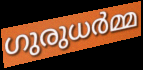
ഗുരുധർമ്മ